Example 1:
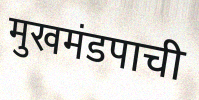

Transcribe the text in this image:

मुखमंडपाची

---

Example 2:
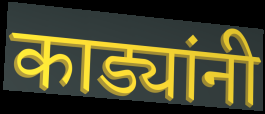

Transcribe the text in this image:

काड्यांनी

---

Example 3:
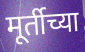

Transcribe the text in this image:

मूर्तीच्या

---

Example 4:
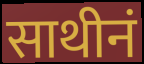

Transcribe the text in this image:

साथीनं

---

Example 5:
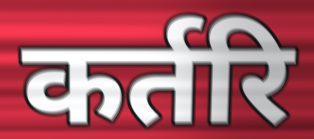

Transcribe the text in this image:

कर्तरि